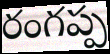
రంగప్ప